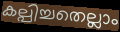
കല്പിച്ചതെല്ലാം